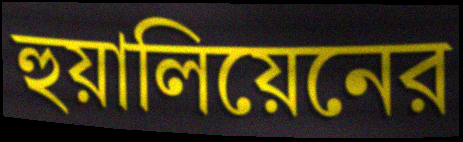
হুয়ালিয়েনের